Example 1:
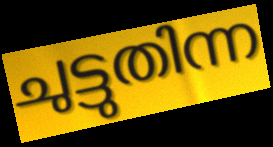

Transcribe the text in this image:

ചുട്ടുതിന്ന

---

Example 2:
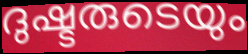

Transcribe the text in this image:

ദുഷ്ടരുടെയും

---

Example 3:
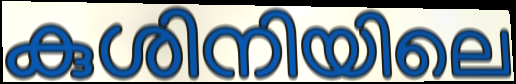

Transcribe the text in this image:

കുശിനിയിലെ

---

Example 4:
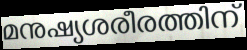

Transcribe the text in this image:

മനുഷ്യശരീരത്തിന്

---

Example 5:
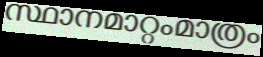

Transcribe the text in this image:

സ്ഥാനമാറ്റംമാത്രം